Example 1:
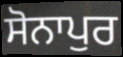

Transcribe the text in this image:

ਸੋਨਾਪੁਰ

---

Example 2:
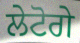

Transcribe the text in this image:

ਲੇਟੋਗੇ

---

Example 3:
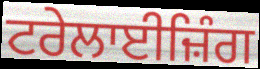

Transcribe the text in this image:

ਟਰੇਲਾਈਜ਼ਿੰਗ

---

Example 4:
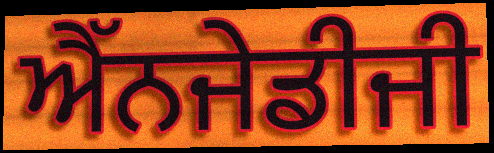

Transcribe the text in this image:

ਐੱਨਜੇਡੀਜੀ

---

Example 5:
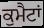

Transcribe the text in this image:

ਕੁਮੈਟਾਂ